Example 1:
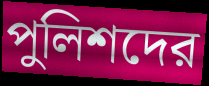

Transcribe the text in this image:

পুলিশদের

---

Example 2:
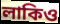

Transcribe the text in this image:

লাকিও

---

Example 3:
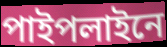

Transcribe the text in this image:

পাইপলাইনে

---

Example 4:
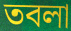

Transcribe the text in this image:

তবলা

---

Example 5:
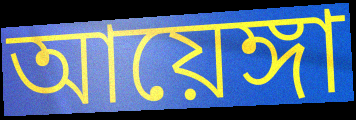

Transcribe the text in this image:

আয়েঙ্গা